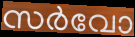
സർവോ